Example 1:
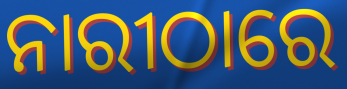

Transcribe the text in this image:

ନାରୀଠାରେ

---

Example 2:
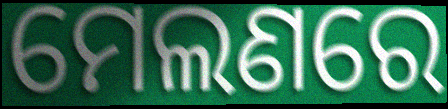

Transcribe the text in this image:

ମେଲଣରେ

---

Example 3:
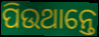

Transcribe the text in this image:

ପିଉଥାନ୍ତେ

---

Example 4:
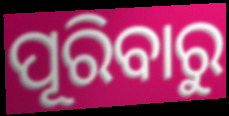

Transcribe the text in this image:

ପୂରିବାରୁ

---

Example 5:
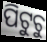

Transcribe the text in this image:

ପିଟୁଚୁ